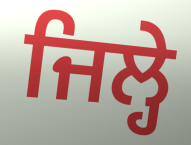
ਜਿਲ੍ਹੇ